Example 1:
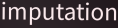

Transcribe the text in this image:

imputation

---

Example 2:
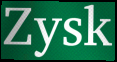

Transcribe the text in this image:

Zysk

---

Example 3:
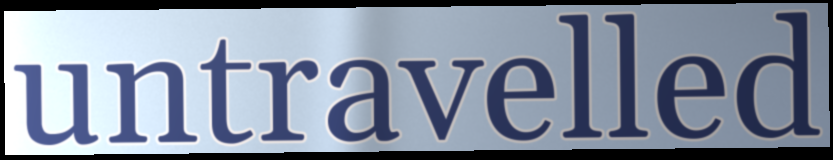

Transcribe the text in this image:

untravelled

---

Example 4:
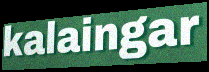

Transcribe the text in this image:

kalaingar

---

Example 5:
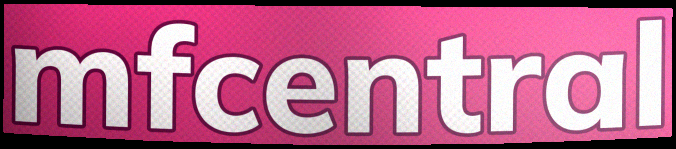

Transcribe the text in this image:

mfcentral